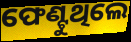
ଫେଣ୍ଟୁଥିଲେ